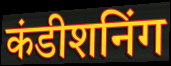
कंडीशनिंग